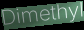
Dimethyl